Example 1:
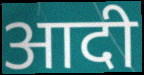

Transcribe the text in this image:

आदी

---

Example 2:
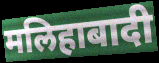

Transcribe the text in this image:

मलिहाबादी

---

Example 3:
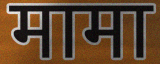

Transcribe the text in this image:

मामा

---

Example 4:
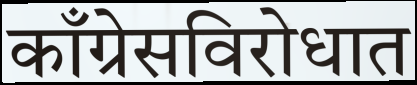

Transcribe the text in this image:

काँग्रेसविरोधात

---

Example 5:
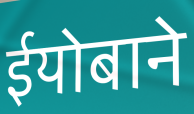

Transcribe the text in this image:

ईयोबाने